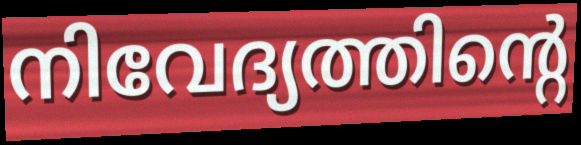
നിവേദ്യത്തിന്റെ